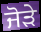
ਜੋਡ਼ੇ